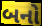
બનો